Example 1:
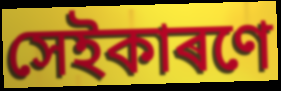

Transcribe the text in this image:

সেইকাৰণে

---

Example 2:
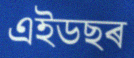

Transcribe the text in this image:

এইডছৰ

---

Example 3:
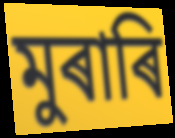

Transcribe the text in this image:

মুৰাৰি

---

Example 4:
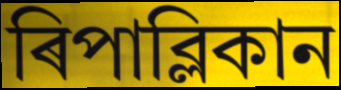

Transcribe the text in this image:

ৰিপাব্লিকান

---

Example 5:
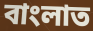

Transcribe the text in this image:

বাংলাত